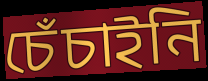
চেঁচাইনি